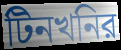
টিনখনির